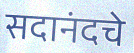
सदानंदचे